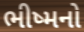
ભીષ્મનો